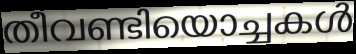
തീവണ്ടിയൊച്ചകൾ